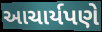
આચાર્યપણે